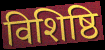
विशिष्ठि